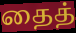
தைத்